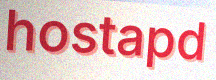
hostapd